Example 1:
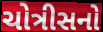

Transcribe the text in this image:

ચોત્રીસનો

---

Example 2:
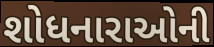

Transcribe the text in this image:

શોધનારાઓની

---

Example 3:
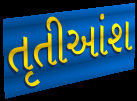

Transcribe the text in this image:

તૃતીઆંશ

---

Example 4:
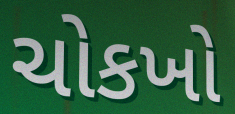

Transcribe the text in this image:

ચોકખો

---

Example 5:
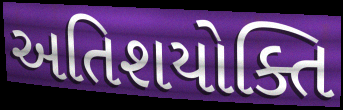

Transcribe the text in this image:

અતિશયોક્તિ